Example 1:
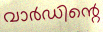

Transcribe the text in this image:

വാർഡിന്റെ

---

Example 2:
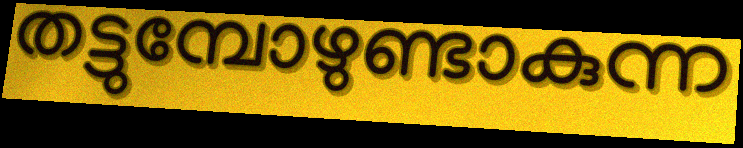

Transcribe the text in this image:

തട്ടുമ്പോഴുണ്ടാകുന്ന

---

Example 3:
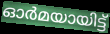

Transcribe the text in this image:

ഓർമയായിട്ട്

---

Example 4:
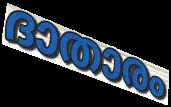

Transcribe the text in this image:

ദാതാരം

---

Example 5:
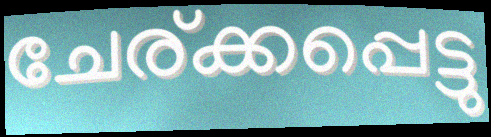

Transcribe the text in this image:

ചേര്ക്കപ്പെട്ടു